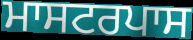
ਮਾਸਟਰਪਾਸ